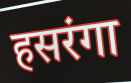
हसरंगा